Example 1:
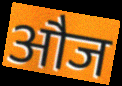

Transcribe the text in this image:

औज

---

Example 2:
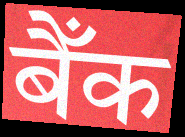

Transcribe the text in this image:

बैँक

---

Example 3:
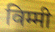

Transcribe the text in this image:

विम्मी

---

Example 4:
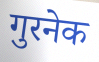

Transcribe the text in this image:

गुरनेक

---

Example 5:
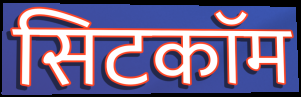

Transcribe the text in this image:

सिटकॉम